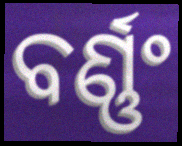
ବର୍ଣ୍ଣଂ